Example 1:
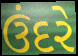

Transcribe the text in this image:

ઉંદરે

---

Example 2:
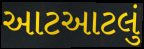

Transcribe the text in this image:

આટઆટલું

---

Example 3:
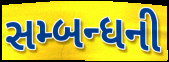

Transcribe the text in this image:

સમ્બન્ધની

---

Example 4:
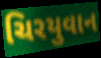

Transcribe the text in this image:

ચિરયુવાન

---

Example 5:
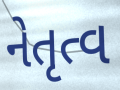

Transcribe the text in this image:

નેતૃત્વ